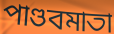
পাণ্ডবমাতা